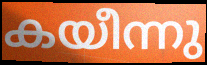
കയീന്നു